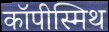
कॉपीस्मिथ